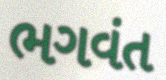
ભગવંત